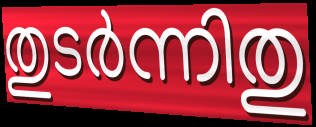
തുടർന്നിതു